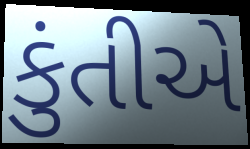
કુંતીએ